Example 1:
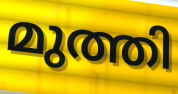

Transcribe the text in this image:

മുത്തി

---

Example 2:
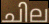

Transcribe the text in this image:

ചില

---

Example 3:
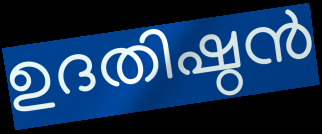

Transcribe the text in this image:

ഉദതിഷ്ഠൻ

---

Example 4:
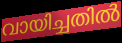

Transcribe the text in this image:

വായിച്ചതിൽ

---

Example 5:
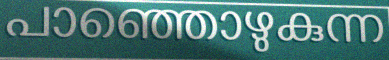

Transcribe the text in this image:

പാഞ്ഞൊഴുകുന്ന